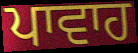
ਪਾਵਾਹ